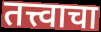
तत्त्वाचा